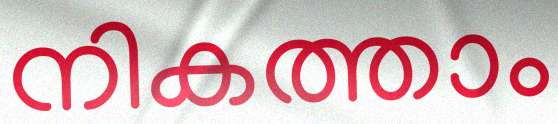
നികത്താം